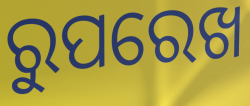
ରୁପରେଖ